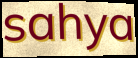
sahya